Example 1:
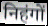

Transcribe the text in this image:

निहंगों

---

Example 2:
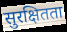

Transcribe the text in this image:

सुरक्षितता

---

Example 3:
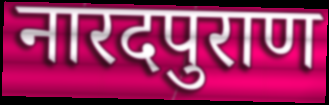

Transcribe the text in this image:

नारदपुराण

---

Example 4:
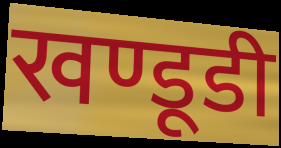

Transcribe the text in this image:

खण्डूडी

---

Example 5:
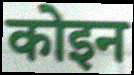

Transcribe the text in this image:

कोइन